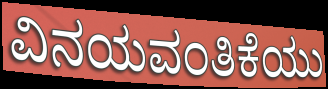
ವಿನಯವಂತಿಕೆಯು